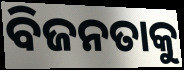
ବିଜନତାକୁ